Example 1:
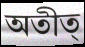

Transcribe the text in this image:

অতীত্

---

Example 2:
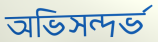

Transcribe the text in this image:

অভিসন্দর্ভ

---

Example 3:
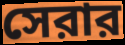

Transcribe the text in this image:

সেরার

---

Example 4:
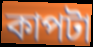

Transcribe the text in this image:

কাপটা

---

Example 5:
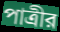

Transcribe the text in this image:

পাত্রীর